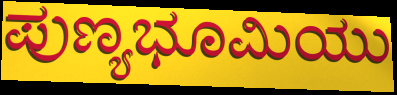
ಪುಣ್ಯಭೂಮಿಯು